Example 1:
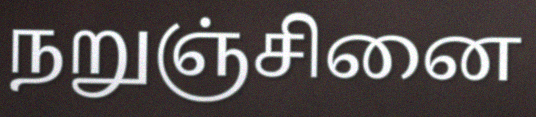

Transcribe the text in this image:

நறுஞ்சினை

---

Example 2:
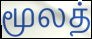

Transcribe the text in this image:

மூலத்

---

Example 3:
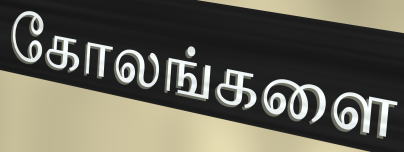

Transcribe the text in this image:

கோலங்களை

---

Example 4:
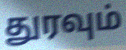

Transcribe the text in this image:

துரவும்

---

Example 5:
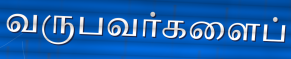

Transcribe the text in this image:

வருபவர்களைப்